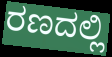
ರಣದಲ್ಲಿ